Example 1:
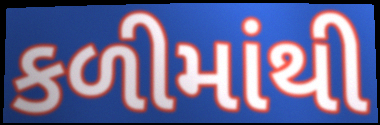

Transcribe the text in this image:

કળીમાંથી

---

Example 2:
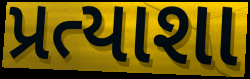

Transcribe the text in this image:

પ્રત્યાશા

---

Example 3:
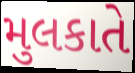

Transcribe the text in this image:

મુલકાતે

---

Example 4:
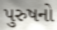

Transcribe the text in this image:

પુરુષનો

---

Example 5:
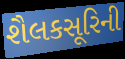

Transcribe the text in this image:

શૈલકસૂરિની